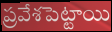
ప్రవేశపెట్టాయి